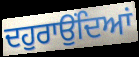
ਦਹੁਰਾਉਂਦਿਆਂ